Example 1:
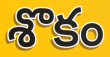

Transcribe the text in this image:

శొకం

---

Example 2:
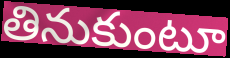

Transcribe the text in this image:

తినుకుంటూ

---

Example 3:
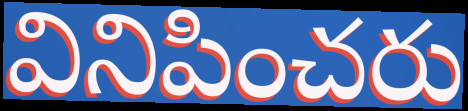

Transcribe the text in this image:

వినిపించరు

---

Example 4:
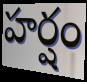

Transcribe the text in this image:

హర్షం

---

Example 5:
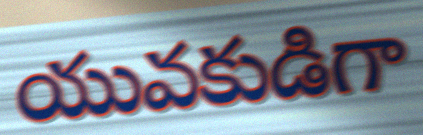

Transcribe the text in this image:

యువకుడిగా